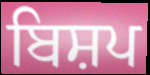
ਬਿਸ਼ਪ